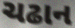
ચઢાન